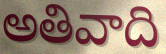
అతివాది